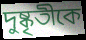
দুষ্কৃতীকে